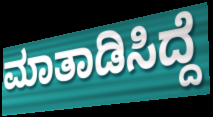
ಮಾತಾಡಿಸಿದ್ದೆ